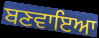
ਬਣਵਾਇਆ